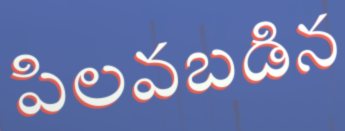
పిలవబడిన